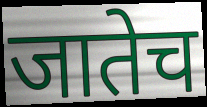
जातेच